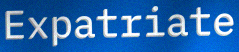
Expatriate